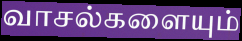
வாசல்களையும்